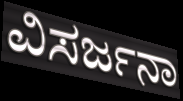
ವಿಸರ್ಜನಾ